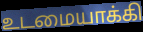
உடமையாக்கி